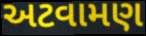
અટવામણ